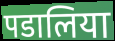
पडालिया